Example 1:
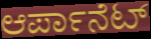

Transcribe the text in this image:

ಆರ್ಪಾನೆಟ್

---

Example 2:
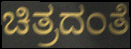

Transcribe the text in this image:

ಚಿತ್ರದಂತೆ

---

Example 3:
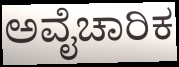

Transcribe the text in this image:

ಅವೈಚಾರಿಕ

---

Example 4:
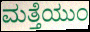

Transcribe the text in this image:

ಮತ್ತೆಯುಂ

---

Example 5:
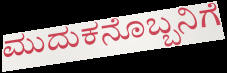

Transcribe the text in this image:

ಮುದುಕನೊಬ್ಬನಿಗೆ